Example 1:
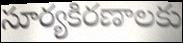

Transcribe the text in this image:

సూర్యకిరణాలకు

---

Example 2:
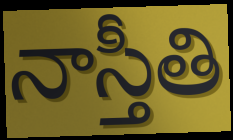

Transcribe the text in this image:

నాస్తీతి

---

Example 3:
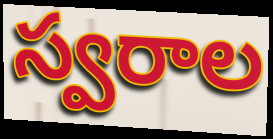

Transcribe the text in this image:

స్వరాల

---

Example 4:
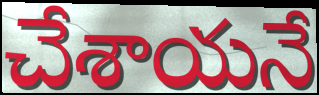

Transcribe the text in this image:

చేశాయనే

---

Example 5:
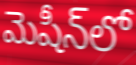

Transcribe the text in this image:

మెషీన్‌లో